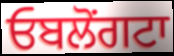
ਓਬਲੋਂਗਟਾ